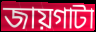
জায়গাটা